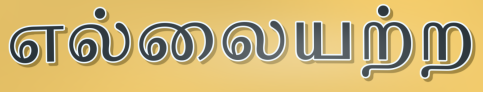
எல்லையற்ற